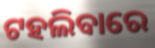
ଟହଲିବାରେ